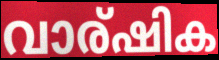
വാര്ഷിക